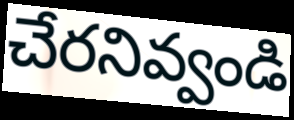
చేరనివ్వండి